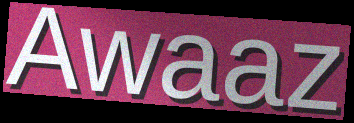
Awaaz